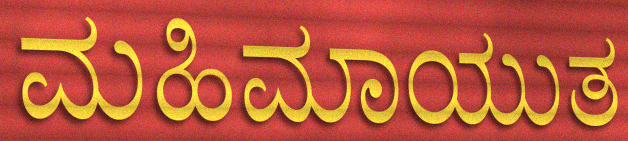
ಮಹಿಮಾಯುತ